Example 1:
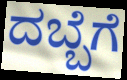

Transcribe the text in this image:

ದಬ್ಬೆಗೆ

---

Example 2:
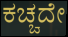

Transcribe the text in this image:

ಕಚ್ಚದೇ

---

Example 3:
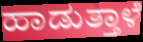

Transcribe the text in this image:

ಹಾಡುತ್ತಾಳೆ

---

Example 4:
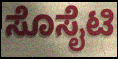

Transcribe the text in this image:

ಸೊಸೈಟಿ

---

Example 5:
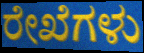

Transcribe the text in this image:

ರೇಖೆಗಳು